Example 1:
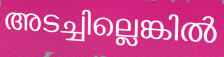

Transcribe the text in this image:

അടച്ചില്ലെങ്കിൽ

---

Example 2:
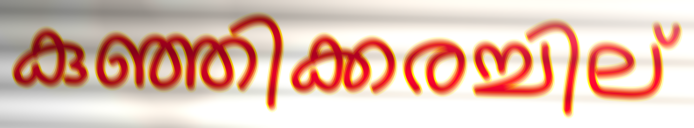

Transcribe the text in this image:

കുഞ്ഞിക്കരച്ചില്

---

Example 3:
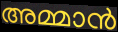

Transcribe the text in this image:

അമ്മാൻ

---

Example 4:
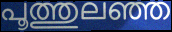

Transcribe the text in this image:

പൂത്തുലഞ്ഞ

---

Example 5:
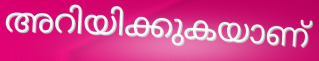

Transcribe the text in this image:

അറിയിക്കുകയാണ്